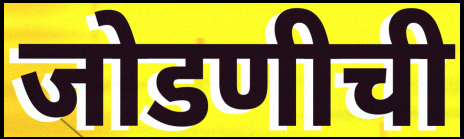
जोडणीची